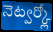
నెట్వర్క్లో